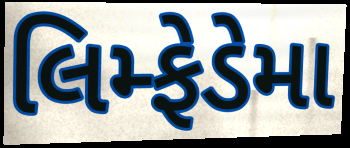
લિમ્ફેડેમા